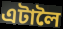
এটালৈ